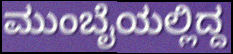
ಮುಂಬೈಯಲ್ಲಿದ್ದ